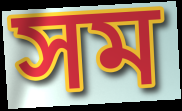
সম